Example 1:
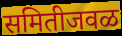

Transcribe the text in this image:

समितीजवळ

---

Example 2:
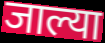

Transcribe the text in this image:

जाल्या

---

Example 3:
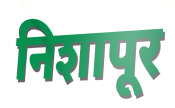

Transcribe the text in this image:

निशापूर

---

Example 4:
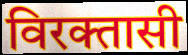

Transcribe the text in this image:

विरक्तासी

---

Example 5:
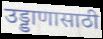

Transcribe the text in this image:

उड्डाणासाठी